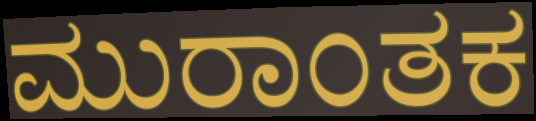
ಮುರಾಂತಕ